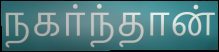
நகர்ந்தான்